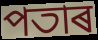
পতাৰ